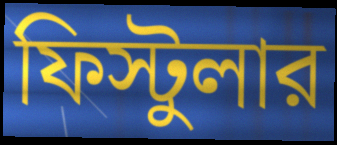
ফিস্টুলার